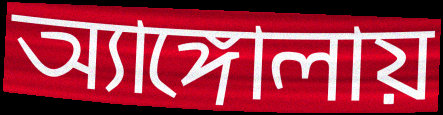
অ্যাঙ্গোলায়